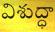
విశుద్ధా